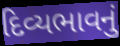
દિવ્યભાવનું